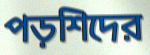
পড়শিদের